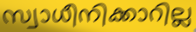
സ്വാധീനിക്കാറില്ല